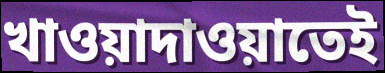
খাওয়াদাওয়াতেই